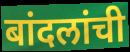
बांदलांची